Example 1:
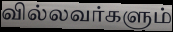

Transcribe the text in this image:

வில்லவர்களும்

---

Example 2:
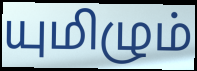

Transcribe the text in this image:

யுமிழும்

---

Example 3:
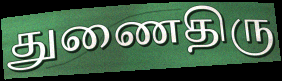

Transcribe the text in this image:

துணைதிரு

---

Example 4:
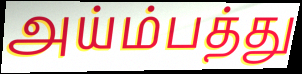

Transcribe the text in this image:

அய்ம்பத்து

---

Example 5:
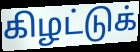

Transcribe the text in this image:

கிழட்டுக்